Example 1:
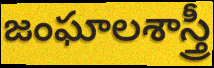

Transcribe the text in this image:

జంఘాలశాస్త్రీ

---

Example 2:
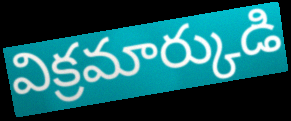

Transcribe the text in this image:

విక్రమార్కుడి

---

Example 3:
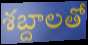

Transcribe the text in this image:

శబ్దాలతో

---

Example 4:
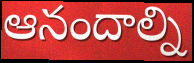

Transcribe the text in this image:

ఆనందాల్ని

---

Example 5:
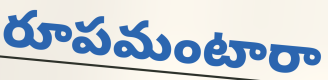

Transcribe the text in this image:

రూపమంటారా